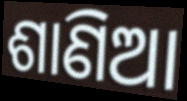
ଶାଣିଆ